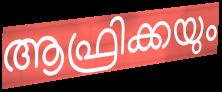
ആഫ്രിക്കയും